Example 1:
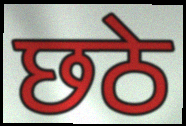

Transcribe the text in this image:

छठे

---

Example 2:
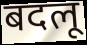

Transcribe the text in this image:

बदलू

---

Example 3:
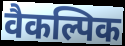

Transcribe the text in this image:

वैकल्पिक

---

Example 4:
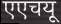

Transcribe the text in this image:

एएचयू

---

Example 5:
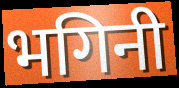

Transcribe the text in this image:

भगिनी